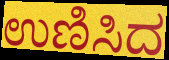
ಉಣಿಸಿದ